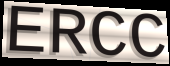
ERCC